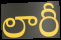
లారీ